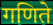
गणिते